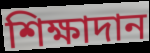
শিক্ষাদান